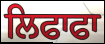
ਲਿਫਾਫਾ